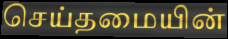
செய்தமையின்